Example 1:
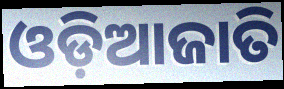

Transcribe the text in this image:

ଓଡ଼ିଆଜାତି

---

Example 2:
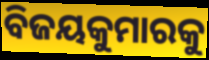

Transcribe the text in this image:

ବିଜୟକୁମାରକୁ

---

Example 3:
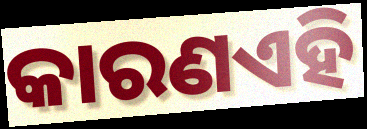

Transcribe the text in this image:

କାରଣଏହି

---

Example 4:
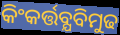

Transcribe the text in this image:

କିଂକର୍ତ୍ତବ୍ଯବିମୁଢ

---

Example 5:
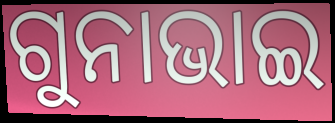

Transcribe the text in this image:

ଗୁନାଭାଇ